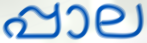
പ്പാല